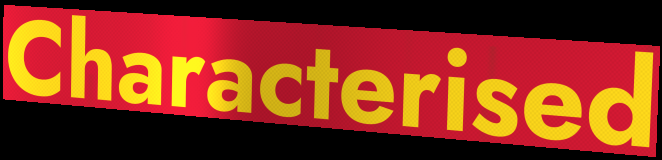
Characterised